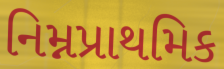
નિમ્નપ્રાથમિક